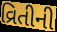
વ્રિતીની